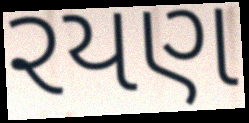
રયણ